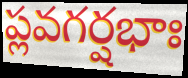
ప్లవగర్షభాః